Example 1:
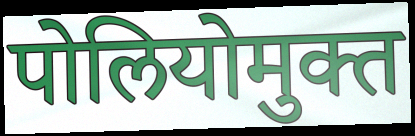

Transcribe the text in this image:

पोलियोमुक्त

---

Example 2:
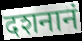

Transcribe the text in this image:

दशनानं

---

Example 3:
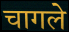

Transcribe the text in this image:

चागले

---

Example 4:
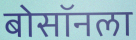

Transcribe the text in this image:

बोसॉनला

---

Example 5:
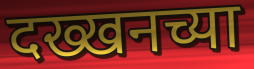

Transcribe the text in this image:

दख्खनच्या